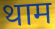
थाम